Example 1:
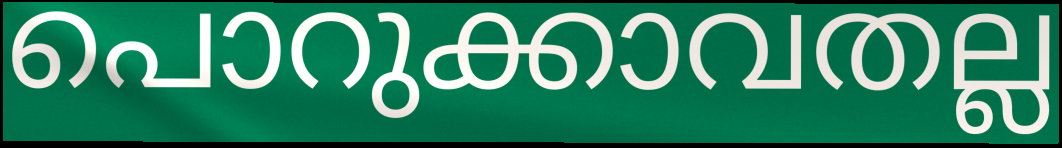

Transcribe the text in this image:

പൊറുക്കാവതല്ല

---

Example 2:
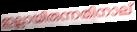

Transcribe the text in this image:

ഇല്ലായിരുന്നതിനാല്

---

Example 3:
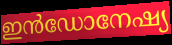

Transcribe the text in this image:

ഇൻഡോനേഷ്യ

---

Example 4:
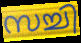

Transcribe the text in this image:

സച്ചി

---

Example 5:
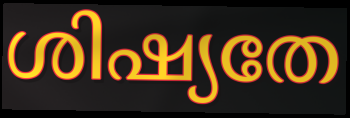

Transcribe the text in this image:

ശിഷ്യതേ